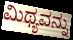
ಮಿಥ್ಯವನ್ನು